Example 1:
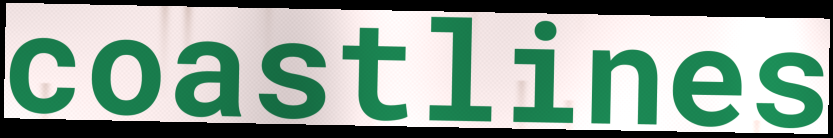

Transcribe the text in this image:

coastlines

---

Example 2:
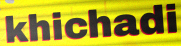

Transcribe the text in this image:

khichadi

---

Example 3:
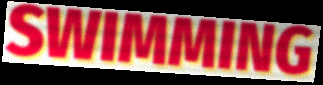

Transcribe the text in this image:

SWIMMING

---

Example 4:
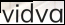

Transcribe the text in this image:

vidva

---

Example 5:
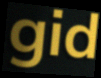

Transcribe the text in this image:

gid